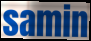
samin